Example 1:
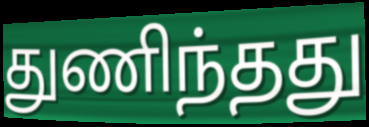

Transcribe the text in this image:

துணிந்தது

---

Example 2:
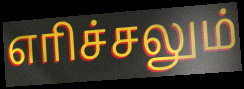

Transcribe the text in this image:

எரிச்சலும்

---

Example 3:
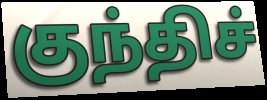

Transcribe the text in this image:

குந்திச்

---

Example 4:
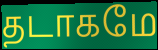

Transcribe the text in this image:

தடாகமே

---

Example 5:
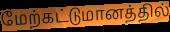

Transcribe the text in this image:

மேற்கட்டுமானத்தில்